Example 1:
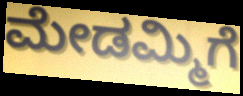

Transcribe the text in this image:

ಮೇಡಮ್ಮಿಗೆ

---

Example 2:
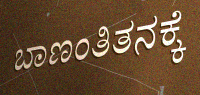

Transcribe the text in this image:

ಬಾಣಂತಿತನಕ್ಕೆ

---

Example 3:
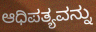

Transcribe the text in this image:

ಆಧಿಪತ್ಯವನ್ನು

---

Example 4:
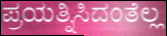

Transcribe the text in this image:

ಪ್ರಯತ್ನಿಸಿದಂತೆಲ್ಲ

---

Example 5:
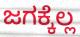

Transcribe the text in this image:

ಜಗಕ್ಕೆಲ್ಲ